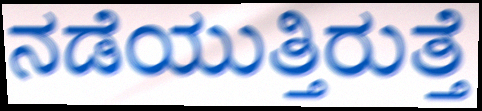
ನಡೆಯುತ್ತಿರುತ್ತೆ